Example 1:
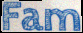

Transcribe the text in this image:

Fam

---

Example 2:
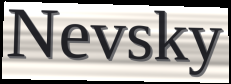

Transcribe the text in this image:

Nevsky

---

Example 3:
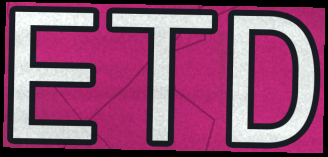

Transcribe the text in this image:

ETD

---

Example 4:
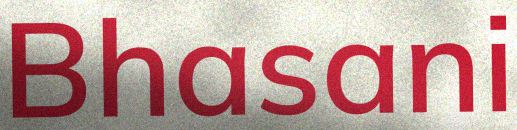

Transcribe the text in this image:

Bhasani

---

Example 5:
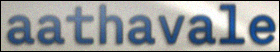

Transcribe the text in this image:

aathavale